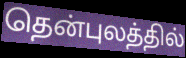
தென்புலத்தில்